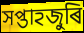
সপ্তাহজুৰি